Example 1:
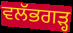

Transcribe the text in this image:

ਵਲੱਭਗੜ੍ਹ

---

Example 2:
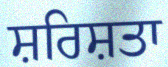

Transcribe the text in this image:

ਸ਼ਰਿਸ਼ਤਾ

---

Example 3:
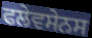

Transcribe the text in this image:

ਫਲੇਵਸੇਨਸ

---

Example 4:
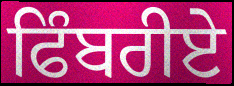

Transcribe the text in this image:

ਫਿੰਬਰੀਏ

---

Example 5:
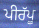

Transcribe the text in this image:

ਪੀਰੱਪੂ